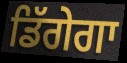
ਡਿੱਗੇਗਾ